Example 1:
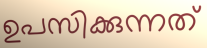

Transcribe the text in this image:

ഉപസിക്കുന്നത്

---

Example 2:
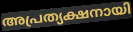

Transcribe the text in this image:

അപ്രത്യക്ഷനായി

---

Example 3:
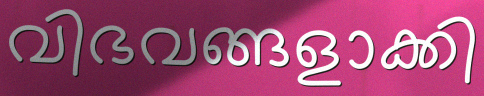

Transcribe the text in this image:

വിഭവങ്ങളാക്കി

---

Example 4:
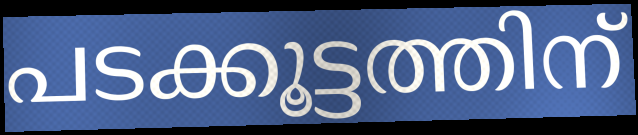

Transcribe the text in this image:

പടക്കൂട്ടത്തിന്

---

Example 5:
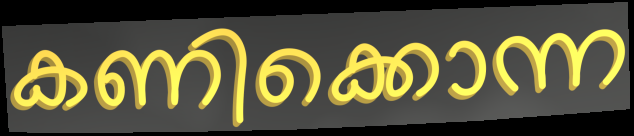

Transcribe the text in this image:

കണിക്കൊന്ന